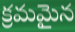
క్రమమైన